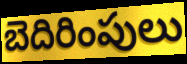
బెదిరింపులు